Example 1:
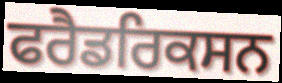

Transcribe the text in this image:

ਫਰੈਡਰਿਕਸਨ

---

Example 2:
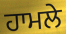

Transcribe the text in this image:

ਹਾਮਲੇ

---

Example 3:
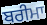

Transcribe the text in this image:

ਬਰੀਮਾ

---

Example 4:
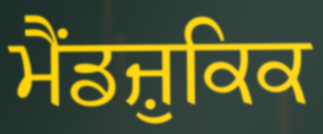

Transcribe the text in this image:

ਮੈਂਡਜ਼ੁਕਿਕ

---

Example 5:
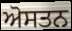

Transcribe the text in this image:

ਅੋਸਤਨ